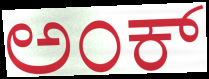
ಅಂಕ್